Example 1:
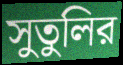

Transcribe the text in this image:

সুতুলির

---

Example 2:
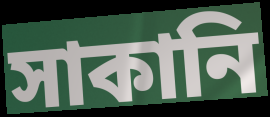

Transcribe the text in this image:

সাকানি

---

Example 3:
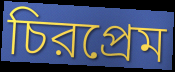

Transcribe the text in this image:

চিরপ্রেম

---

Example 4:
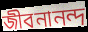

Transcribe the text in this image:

জীবনানন্দ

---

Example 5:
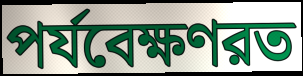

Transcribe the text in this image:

পর্যবেক্ষণরত